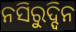
ନସିରୁଦ୍ଦିନ